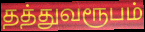
தத்துவரூபம்